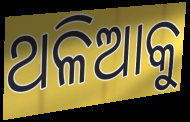
ଥଳିଆକୁ